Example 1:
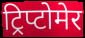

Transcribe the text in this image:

ट्रिप्टोमेर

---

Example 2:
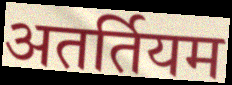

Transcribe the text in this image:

अतर्तियम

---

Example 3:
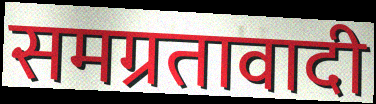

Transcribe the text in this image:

समग्रतावादी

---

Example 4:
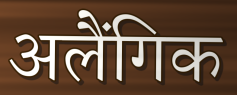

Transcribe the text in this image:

अलैंगिक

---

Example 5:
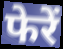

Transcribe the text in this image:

फेरें